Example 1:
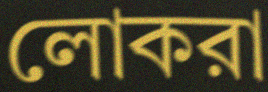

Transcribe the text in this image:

লোকরা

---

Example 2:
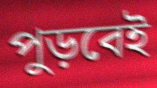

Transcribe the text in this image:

পুড়বেই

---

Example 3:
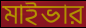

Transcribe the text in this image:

মাইভার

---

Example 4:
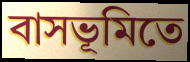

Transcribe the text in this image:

বাসভূমিতে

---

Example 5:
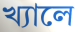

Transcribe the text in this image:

খ্যালে